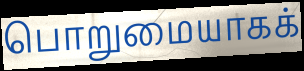
பொறுமையாகக்